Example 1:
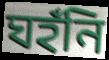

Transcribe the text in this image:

ঘহঁনি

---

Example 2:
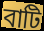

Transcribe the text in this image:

বাটি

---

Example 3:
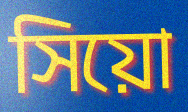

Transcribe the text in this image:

সিয়ো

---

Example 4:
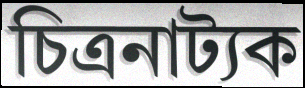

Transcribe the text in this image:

চিত্ৰনাট্যক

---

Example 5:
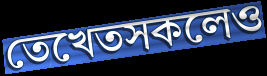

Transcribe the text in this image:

তেখেতসকলেও